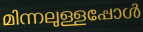
മിന്നലുള്ളപ്പോൾ